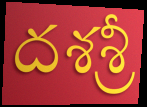
దశశ్రీ